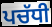
ਪਚੱਧੀ